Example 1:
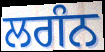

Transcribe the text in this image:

ਲਗੰਨ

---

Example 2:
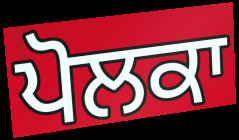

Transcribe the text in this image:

ਪੋਲਕਾ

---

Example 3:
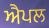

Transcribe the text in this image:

ਐਪਲ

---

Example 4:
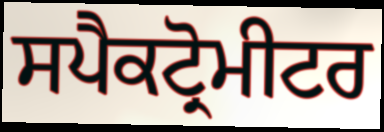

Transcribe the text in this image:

ਸਪੈਕਟ੍ਰੋਮੀਟਰ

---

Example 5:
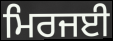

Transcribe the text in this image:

ਮਿਰਜਈ